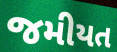
જમીયત